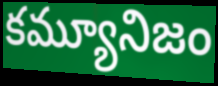
కమ్యూనిజం